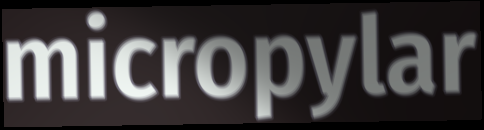
micropylar